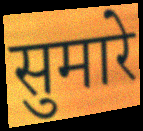
सुमारे